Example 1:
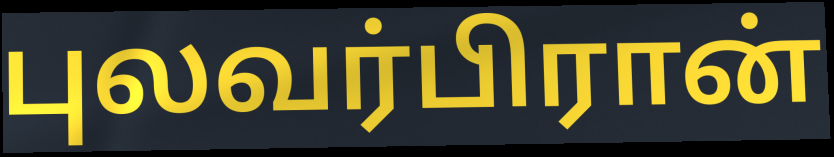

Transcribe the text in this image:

புலவர்பிரான்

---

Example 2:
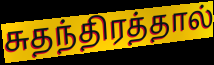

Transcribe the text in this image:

சுதந்திரத்தால்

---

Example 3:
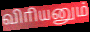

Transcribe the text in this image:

விரியனும்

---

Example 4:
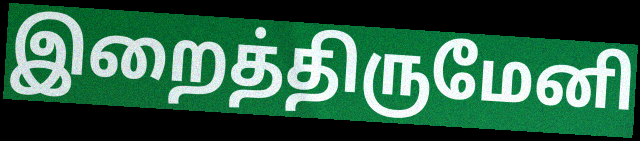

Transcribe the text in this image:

இறைத்திருமேனி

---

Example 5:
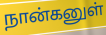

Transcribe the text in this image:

நான்கனுள்